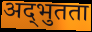
अद्‌भुतता